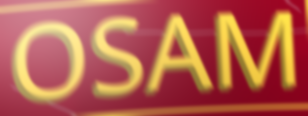
OSAM